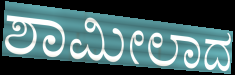
ಶಾಮೀಲಾದ